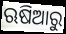
ଋଷିଆରୁ